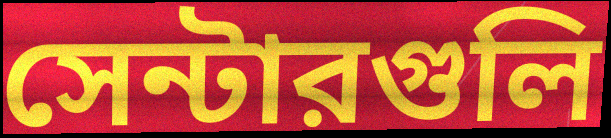
সেন্টারগুলি